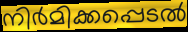
നിർമിക്കപ്പെടൽ